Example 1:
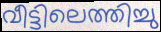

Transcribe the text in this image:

വീട്ടിലെത്തിച്ചു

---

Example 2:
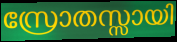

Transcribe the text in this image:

സ്രോതസ്സായി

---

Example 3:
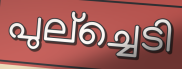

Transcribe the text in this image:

പുല്ച്ചെടി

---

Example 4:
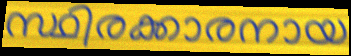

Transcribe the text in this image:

സ്ഥിരക്കാരനായ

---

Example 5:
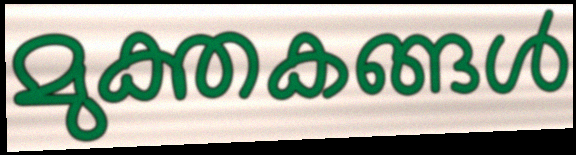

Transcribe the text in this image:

മുക്തകങ്ങൾ